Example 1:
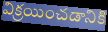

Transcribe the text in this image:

విక్రయించడానికి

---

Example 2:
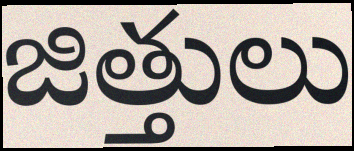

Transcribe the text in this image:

జిత్తులు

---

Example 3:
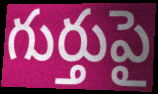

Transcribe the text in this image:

గుర్తుపై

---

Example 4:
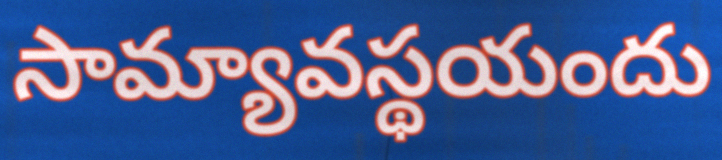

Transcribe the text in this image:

సామ్యావస్థయందు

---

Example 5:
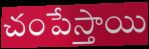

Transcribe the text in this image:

చంపేస్తాయి